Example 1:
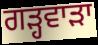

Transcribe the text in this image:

ਗੜ੍ਹਵਾੜਾ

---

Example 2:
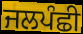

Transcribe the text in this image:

ਜਲਪੰਛੀ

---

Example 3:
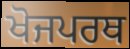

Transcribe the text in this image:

ਖੋਜਪਰਥ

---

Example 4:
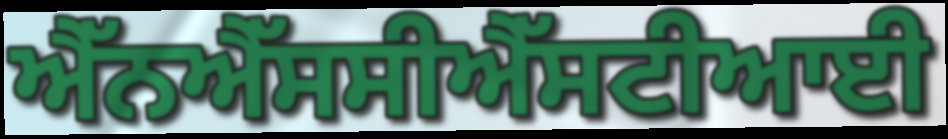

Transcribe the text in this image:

ਐੱਨਐੱਸਸੀਐੱਸਟੀਆਈ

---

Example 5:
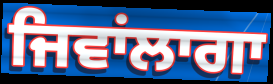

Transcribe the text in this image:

ਜਿਵਾਂਲਾਗਾ